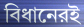
বিধানেরই